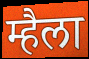
म्हैला